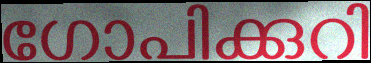
ഗോപിക്കുറി